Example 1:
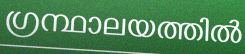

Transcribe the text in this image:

ഗ്രന്ഥാലയത്തിൽ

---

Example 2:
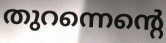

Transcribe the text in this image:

തുറന്നെന്റെ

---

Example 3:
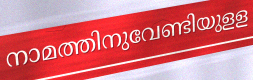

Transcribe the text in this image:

നാമത്തിനുവേണ്ടിയുളള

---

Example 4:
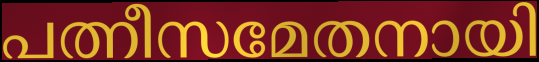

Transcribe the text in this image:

പത്നീസമേതനായി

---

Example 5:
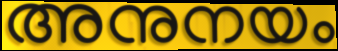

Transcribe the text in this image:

അനുനയം